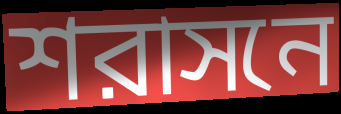
শরাসনে